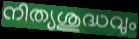
നിത്യശുദ്ധവും